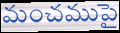
మంచముపై